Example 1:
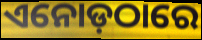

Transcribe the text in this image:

ଏନୋଡ଼ଠାରେ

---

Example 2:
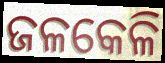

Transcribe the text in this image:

ଜଳକେଳି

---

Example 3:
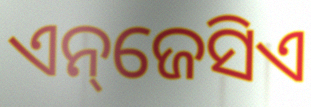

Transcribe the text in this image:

ଏନ୍‌ଜେସିଏ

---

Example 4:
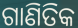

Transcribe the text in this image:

ଗାଣିତିକ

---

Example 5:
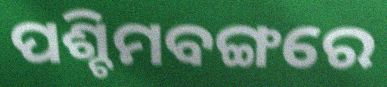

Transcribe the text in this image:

ପଶ୍ଚିମବଙ୍ଗରେ